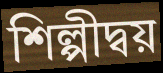
শিল্পীদ্বয়